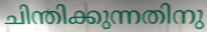
ചിന്തിക്കുന്നതിനു